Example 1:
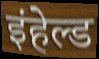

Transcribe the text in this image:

इंहेल्ड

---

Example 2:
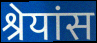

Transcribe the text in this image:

श्रेयांस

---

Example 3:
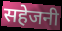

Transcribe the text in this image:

सहेजनी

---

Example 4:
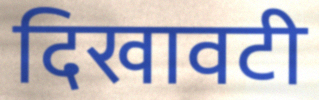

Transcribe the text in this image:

दिखावटी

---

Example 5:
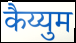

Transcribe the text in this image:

कैय्युम